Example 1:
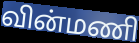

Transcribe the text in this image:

வின்மணி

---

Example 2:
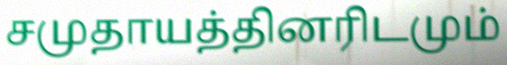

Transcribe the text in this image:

சமுதாயத்தினரிடமும்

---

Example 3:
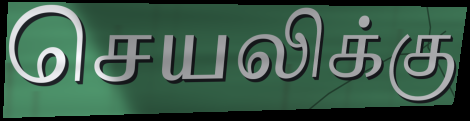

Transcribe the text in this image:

செயலிக்கு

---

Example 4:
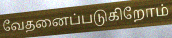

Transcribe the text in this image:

வேதனைப்படுகிறோம்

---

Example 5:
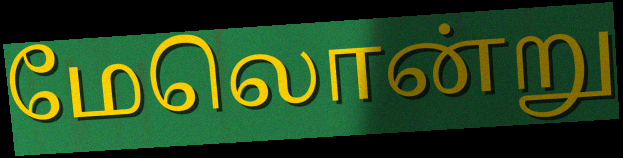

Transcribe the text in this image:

மேலொன்று